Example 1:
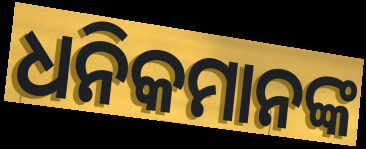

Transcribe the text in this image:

ଧନିକମାନଙ୍କ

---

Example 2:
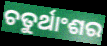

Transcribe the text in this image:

ଚତୁର୍ଥାଂଶର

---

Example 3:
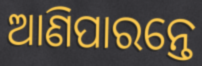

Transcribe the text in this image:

ଆଣିପାରନ୍ତେ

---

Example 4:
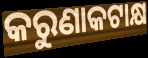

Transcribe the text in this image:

କରୁଣାକଟାକ୍ଷ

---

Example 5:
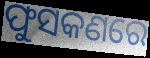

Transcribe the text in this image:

ଫୁସକଣରେ